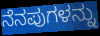
ನೆನಪುಗಳನ್ನು